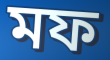
মফ